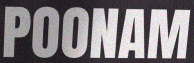
POONAM